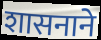
शासनाने